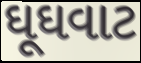
ઘૂઘવાટ